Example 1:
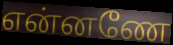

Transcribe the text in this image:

என்னணே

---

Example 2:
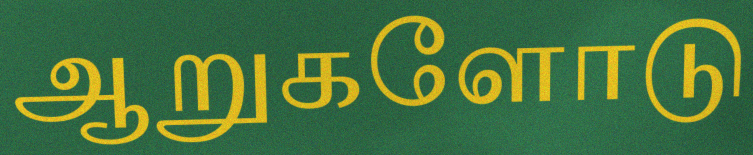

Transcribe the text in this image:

ஆறுகளோடு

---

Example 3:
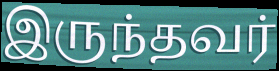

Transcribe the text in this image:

இருந்தவர்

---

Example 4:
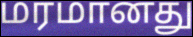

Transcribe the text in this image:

மரமானது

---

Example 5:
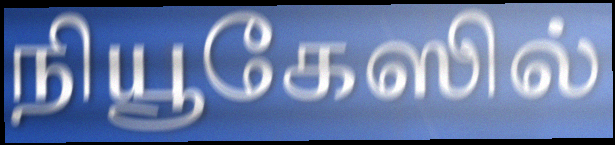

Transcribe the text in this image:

நியூகேஸில்